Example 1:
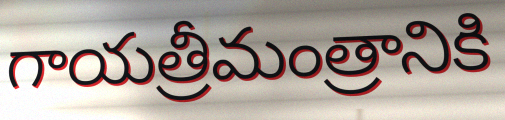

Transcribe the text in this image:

గాయత్రీమంత్రానికి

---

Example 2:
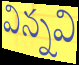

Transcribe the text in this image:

విన్నవి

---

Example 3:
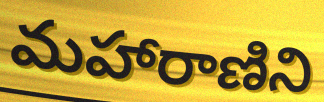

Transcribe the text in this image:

మహారాణిని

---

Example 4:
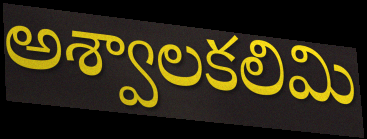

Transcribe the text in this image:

అశ్వాలకలిమి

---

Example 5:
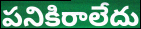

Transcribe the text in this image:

పనికిరాలేదు